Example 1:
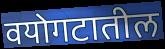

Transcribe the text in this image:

वयोगटातील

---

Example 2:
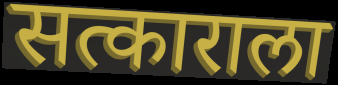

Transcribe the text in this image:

सत्काराला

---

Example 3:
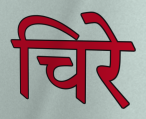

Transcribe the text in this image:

चिरे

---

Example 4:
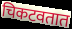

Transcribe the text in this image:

चिकटवतात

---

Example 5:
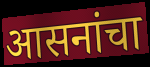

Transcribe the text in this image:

आसनांचा